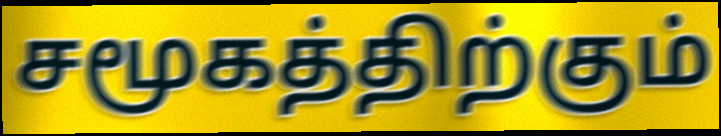
சமூகத்திற்கும்